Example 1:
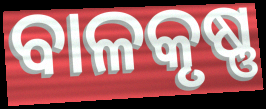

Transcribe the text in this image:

ବାଳକୃଷ୍ଣ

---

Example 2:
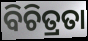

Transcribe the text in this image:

ବିଚିତ୍ରତା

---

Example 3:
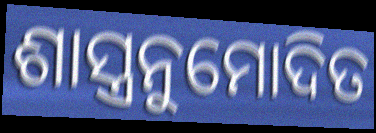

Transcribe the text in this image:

ଶାସ୍ତ୍ରନୁମୋଦିତ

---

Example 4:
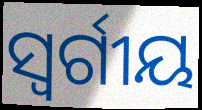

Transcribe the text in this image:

ସ୍ୱର୍ଗୀୟ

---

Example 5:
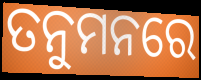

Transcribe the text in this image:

ତନୁମନରେ